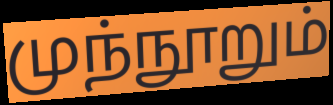
முந்நூறும்